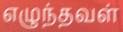
எழுந்தவள்